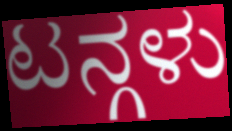
ಟನ್ಗಳು